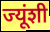
ज्यूंशी